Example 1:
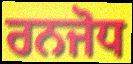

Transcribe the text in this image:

ਰਨਜੋਧ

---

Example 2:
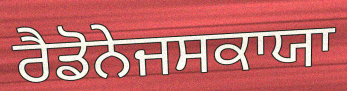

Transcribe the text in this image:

ਰੈਡੋਨੇਜਸਕਾਯਾ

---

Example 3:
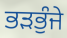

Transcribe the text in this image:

ਭੜਭੁੰਜੇ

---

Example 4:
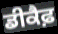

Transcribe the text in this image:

ਡੀਕੈਫ਼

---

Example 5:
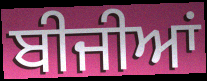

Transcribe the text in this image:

ਬੀਜੀਆਂ